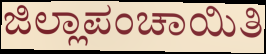
ಜಿಲ್ಲಾಪಂಚಾಯಿತಿ